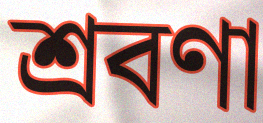
শ্রবণা